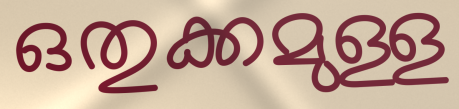
ഒതുക്കമുള്ള